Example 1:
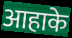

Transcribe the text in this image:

आहाके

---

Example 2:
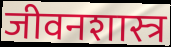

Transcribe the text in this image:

जीवनशास्त्र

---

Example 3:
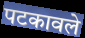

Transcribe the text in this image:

पटकावले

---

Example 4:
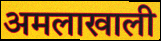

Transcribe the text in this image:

अमलाखाली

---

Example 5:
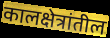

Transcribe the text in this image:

कालक्षेत्रांतील